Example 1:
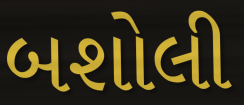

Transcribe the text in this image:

બશોલી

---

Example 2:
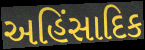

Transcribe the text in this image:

અહિંસાદિક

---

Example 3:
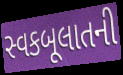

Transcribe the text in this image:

સ્વકબૂલાતની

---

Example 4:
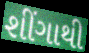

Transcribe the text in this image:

શીંગાથી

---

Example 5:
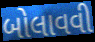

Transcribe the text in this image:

બોલાવવી